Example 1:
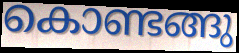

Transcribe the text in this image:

കൊണ്ടങ്ങു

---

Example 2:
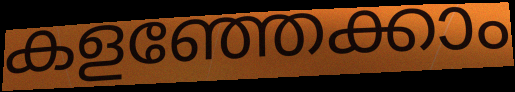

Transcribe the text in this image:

കളഞ്ഞേക്കാം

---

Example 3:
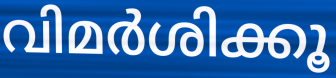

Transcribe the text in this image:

വിമർശിക്കൂ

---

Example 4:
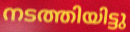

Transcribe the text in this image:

നടത്തിയിട്ടു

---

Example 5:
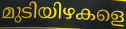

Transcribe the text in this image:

മുടിയിഴകളെ